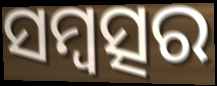
ସମ୍ବତ୍ସର